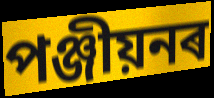
পঞ্জীয়নৰ